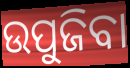
ଉପୁଜିବା